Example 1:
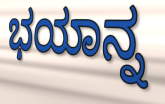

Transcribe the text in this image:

ಭಯಾನ್ನ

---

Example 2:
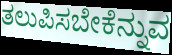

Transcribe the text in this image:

ತಲುಪಿಸಬೇಕೆನ್ನುವ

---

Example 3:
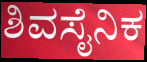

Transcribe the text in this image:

ಶಿವಸೈನಿಕ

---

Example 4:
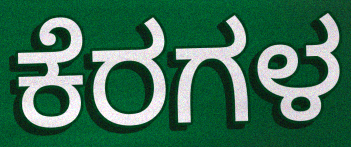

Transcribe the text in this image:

ಕೆರಗಳ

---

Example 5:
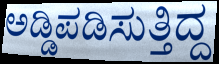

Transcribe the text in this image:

ಅಡ್ಡಿಪಡಿಸುತ್ತಿದ್ದ